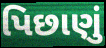
પિછાણું